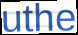
uthe